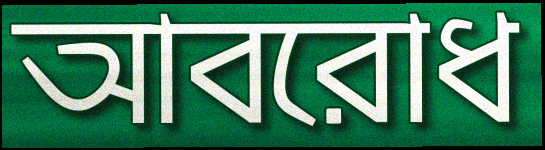
আবরোধ